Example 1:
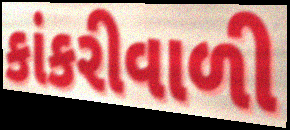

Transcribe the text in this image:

કાંકરીવાળી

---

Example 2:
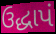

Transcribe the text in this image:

ઉદ્ધાપં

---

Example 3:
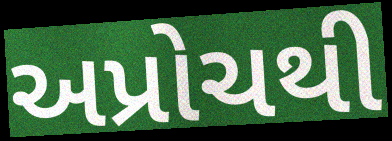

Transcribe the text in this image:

અપ્રોચથી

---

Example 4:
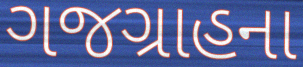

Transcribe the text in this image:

ગજગ્રાહના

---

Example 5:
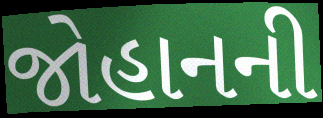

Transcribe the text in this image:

જોહાનની